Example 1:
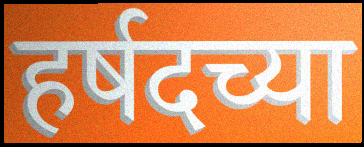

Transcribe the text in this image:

हर्षदच्या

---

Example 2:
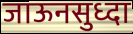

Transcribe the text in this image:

जाऊनसुध्दा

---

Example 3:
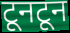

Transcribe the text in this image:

टूनटून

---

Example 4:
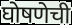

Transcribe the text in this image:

घोषणेची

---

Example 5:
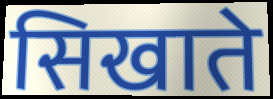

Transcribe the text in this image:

सिखाते